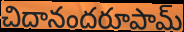
చిదానందరూపామ్